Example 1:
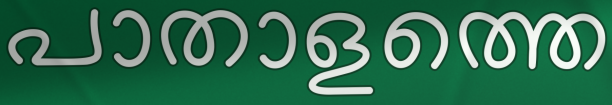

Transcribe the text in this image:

പാതാളത്തെ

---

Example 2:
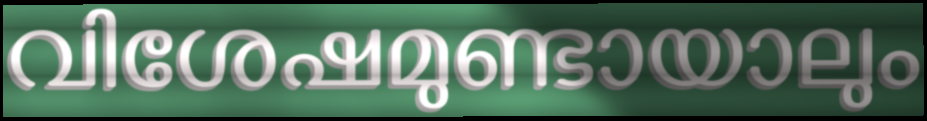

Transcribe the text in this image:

വിശേഷമുണ്ടായാലും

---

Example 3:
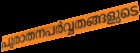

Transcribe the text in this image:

പുരാതനപർവ്വതങ്ങളുടെ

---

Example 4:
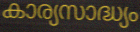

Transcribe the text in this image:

കാര്യസാദ്ധ്യം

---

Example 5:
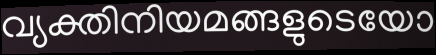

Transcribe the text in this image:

വ്യക്തിനിയമങ്ങളുടെയോ